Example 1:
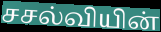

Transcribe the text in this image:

சசல்வியின்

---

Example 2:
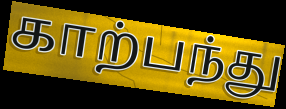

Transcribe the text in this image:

காற்பந்து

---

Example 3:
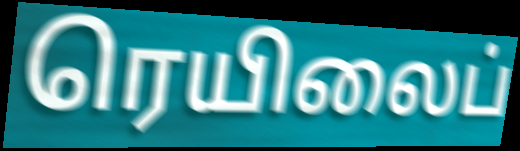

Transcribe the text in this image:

ரெயிலைப்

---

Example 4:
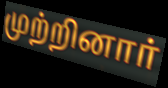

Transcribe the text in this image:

முற்றினார்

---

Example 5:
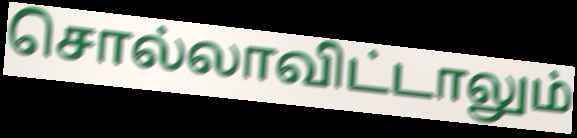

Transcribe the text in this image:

சொல்லாவிட்டாலும்